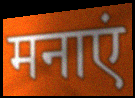
मनाएं